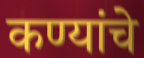
कण्यांचे